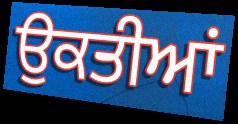
ਉਕਤੀਆਂ